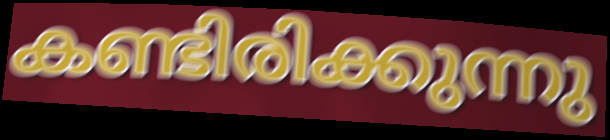
കണ്ടിരിക്കുന്നു